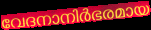
വേദനാനിർഭരമായ